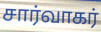
சார்வாகர்